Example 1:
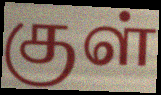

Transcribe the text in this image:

குள்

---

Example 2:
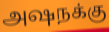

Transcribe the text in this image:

அஷநக்கு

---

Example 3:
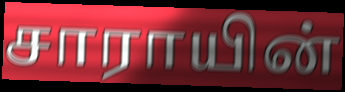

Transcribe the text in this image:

சாராயின்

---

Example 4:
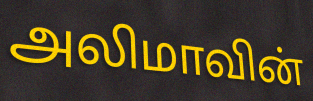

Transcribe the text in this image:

அலிமாவின்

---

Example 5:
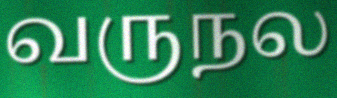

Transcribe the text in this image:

வருநல